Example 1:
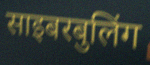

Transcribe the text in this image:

साइबरबुलिंग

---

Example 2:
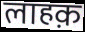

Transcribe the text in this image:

लाहक़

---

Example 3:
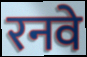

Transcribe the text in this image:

रनवे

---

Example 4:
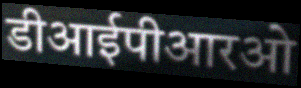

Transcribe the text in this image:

डीआईपीआरओ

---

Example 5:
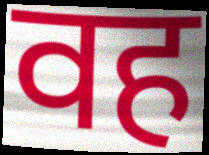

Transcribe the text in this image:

वह